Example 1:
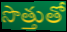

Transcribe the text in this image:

సొత్తుతో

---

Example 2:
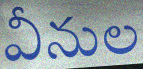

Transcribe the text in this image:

వీనుల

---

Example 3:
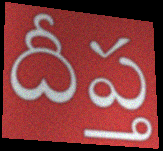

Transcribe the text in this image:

దీప్త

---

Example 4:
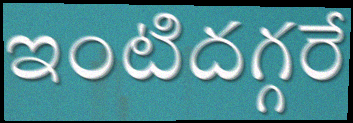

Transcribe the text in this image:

ఇంటిదగ్గరే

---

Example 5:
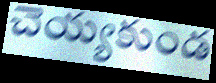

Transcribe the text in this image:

చెయ్యకుండ